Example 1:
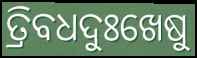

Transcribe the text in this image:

ତ୍ରିବଧଦୁଃଖେଷୁ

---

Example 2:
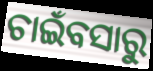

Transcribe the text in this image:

ଚାଇଁବସାରୁ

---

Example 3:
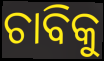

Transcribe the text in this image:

ଚାବିକୁ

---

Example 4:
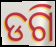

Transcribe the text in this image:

ଡଗି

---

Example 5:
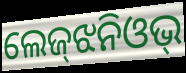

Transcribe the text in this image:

ଲେଜ୍‌ଝନିଓଭ୍